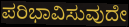
ಪರಿಭಾವಿಸುವುದೇ